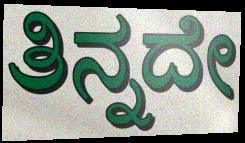
ತಿನ್ನದೇ